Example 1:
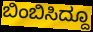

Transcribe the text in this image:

ಬಿಂಬಿಸಿದ್ದೂ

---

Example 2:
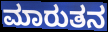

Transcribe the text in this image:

ಮಾರುತನ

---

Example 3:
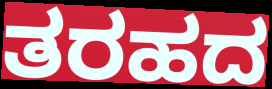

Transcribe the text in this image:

ತರಹದ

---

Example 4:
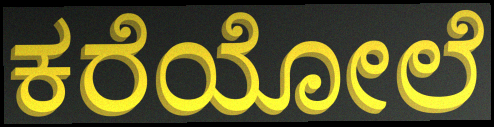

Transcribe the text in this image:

ಕರೆಯೋಲೆ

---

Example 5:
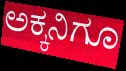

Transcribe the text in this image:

ಅಕ್ಕನಿಗೂ